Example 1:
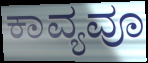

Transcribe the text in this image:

ಕಾವ್ಯವೂ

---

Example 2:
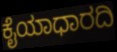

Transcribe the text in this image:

ಕೈಯಾಧಾರದಿ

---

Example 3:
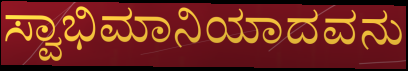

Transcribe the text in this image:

ಸ್ವಾಭಿಮಾನಿಯಾದವನು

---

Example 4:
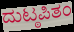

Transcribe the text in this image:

ದುಟ್ಠಪಿತಂ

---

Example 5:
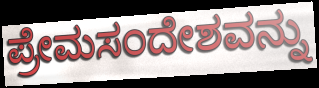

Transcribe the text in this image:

ಪ್ರೇಮಸಂದೇಶವನ್ನು